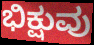
ಭಿಕ್ಷುವು